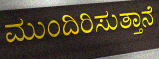
ಮುಂದಿರಿಸುತ್ತಾನೆ